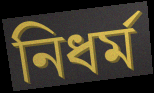
নিধর্ম